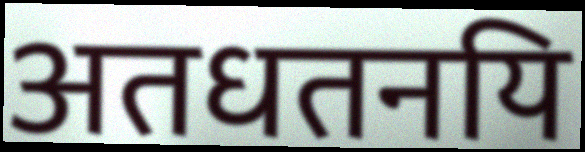
अतधतनयि